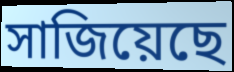
সাজিয়েছে